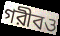
গরীবও